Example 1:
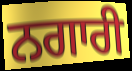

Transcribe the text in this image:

ਨਗਾਰੀ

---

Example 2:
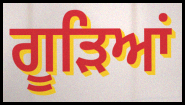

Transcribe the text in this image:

ਗੂੜਿਆਂ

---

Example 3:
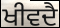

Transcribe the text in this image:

ਖੀਵਦੈ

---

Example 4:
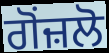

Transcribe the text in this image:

ਗੋਂਜ਼ਲੋ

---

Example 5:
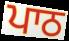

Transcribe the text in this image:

ਪਾਠ